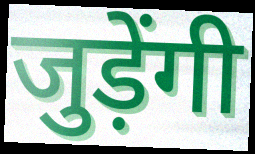
जुड़ेंगी